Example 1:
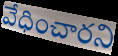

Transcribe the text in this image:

వేధించారని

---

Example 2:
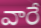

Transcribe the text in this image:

వారే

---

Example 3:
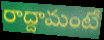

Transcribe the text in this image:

రాద్దామంటే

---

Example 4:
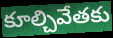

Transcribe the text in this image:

కూల్చివేతకు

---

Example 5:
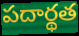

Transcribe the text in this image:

పదార్థత